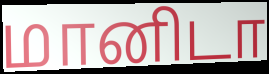
மானிடா